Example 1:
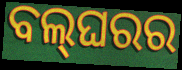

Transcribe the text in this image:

ବଲ୍‌ଘରର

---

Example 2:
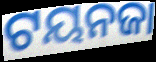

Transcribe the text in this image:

ଟୟନଜା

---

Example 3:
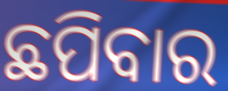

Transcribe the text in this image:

ଛପିବାର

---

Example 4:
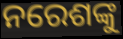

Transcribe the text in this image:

ନରେଶଙ୍କୁ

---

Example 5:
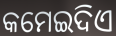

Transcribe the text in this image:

କମେଇଦିଏ